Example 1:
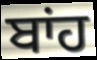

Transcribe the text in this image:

ਬਾਂਹ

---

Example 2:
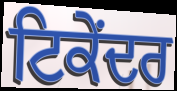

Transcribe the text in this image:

ਟਿਕੇਂਦਰ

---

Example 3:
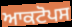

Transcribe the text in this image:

ਆਕਟੋਪਸ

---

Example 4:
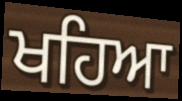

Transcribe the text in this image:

ਖਹਿਆ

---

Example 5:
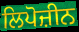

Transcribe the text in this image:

ਲਿਪੋਜ਼ੀਨ